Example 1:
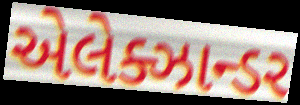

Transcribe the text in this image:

એલેક્ઝાન્ડર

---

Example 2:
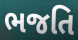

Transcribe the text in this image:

ભજતિ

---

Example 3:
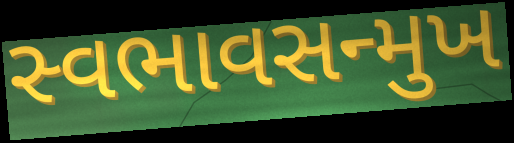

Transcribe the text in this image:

સ્વભાવસન્મુખ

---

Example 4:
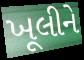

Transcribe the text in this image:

ખૂલીને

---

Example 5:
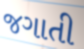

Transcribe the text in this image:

જગાતી